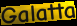
Galatta